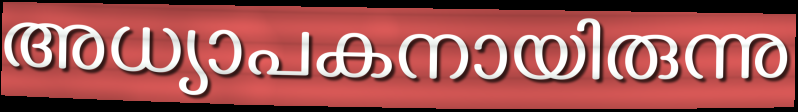
അധ്യാപകനായിരുന്നു